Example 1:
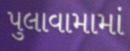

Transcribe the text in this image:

પુલાવામામાં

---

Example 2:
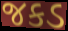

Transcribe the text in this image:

જકડ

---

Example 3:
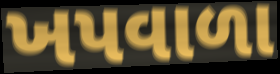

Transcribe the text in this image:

ખપવાળા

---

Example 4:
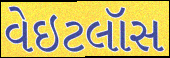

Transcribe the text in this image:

વેઇટલૉસ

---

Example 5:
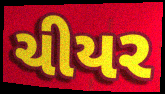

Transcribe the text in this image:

ચીયર